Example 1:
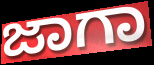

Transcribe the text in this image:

ಜಾಗಾ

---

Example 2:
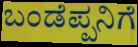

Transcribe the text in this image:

ಬಂಡೆಪ್ಪನಿಗೆ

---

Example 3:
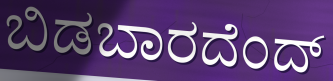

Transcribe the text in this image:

ಬಿಡಬಾರದೆಂದ್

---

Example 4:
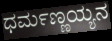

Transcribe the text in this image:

ಧರ್ಮಣ್ಣಯ್ಯನ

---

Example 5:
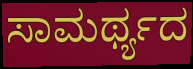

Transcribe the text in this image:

ಸಾಮರ್ಥ್ಯದ